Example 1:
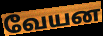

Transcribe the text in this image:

வேயன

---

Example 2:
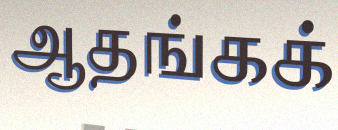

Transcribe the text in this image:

ஆதங்கக்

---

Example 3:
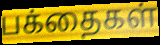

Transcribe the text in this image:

பக்தைகள்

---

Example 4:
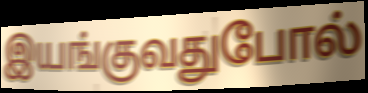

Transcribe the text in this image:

இயங்குவதுபோல்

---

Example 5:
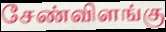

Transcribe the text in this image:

சேண்விளங்கு